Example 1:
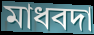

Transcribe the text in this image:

মাধবদা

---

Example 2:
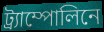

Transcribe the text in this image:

ট্র্যাম্পোলিনে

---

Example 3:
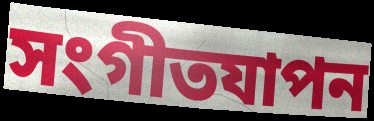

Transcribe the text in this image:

সংগীতযাপন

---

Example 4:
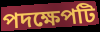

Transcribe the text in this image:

পদক্ষেপটি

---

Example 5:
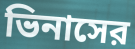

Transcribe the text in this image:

ভিনাসের